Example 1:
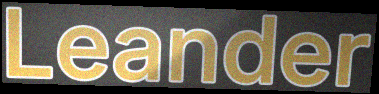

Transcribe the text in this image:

Leander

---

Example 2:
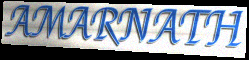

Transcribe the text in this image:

AMARNATH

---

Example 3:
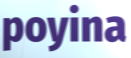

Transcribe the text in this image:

poyina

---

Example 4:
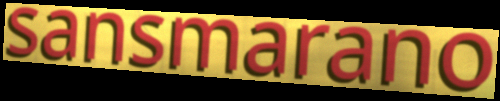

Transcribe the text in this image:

sansmarano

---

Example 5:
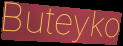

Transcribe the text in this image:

Buteyko